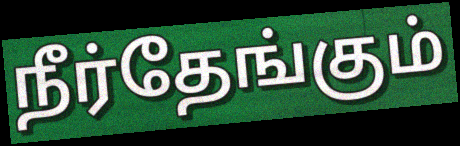
நீர்தேங்கும்